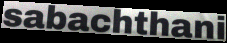
sabachthani